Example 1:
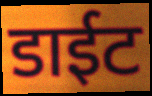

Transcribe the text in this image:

डाईट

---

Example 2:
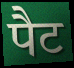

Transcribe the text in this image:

पैट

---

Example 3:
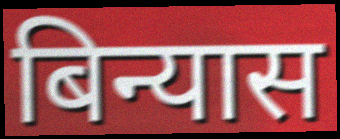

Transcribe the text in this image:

बिन्यास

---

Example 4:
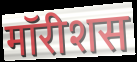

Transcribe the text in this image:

मॉरीशस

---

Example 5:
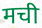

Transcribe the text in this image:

मची